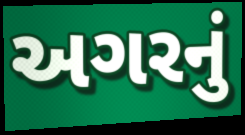
અગરનું